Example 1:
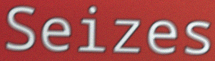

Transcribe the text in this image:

Seizes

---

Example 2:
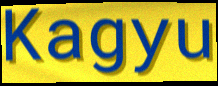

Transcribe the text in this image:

Kagyu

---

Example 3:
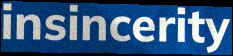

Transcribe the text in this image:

insincerity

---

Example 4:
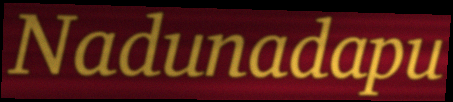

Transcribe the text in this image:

Nadunadapu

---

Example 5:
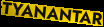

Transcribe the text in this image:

TYANANTAR